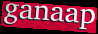
ganaap